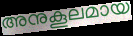
അനുകൂലമായ